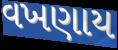
વખણાય